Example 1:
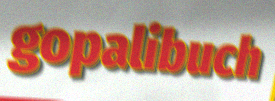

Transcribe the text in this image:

gopalibuch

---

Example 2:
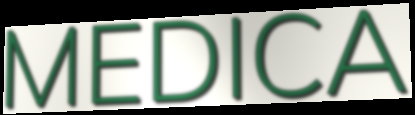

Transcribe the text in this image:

MEDICA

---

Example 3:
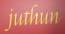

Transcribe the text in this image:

juthun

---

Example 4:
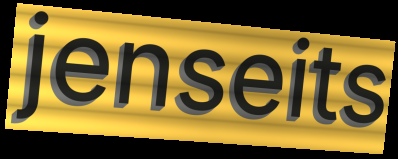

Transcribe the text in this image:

jenseits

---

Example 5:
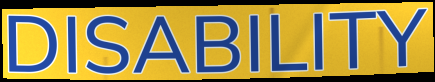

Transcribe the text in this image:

DISABILITY